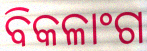
ବିକଳାଂଗ